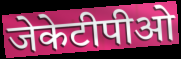
जेकेटीपीओ